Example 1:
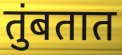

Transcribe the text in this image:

तुंबतात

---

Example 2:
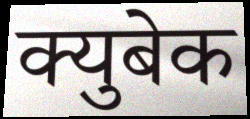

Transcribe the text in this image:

क्युबेक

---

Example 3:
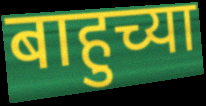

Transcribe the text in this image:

बाहुच्या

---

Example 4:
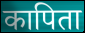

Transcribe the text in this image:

कापिता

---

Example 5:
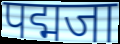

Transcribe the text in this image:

पद्मजा